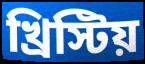
খ্রিস্টিয়